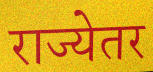
राज्येतर